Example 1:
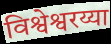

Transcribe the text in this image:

विश्वेश्वरय्या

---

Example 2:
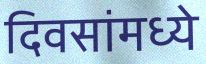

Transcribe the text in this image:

दिवसांमध्ये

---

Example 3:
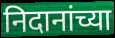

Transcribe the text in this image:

निदानांच्या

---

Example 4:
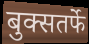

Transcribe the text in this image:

बुक्सतर्फे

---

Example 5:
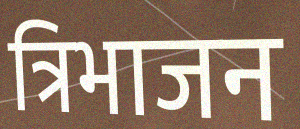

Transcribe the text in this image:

त्रिभाजन